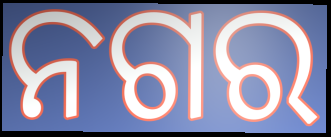
ନଗର